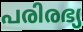
പരിരഭ്യ